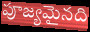
పూజ్యమైనది